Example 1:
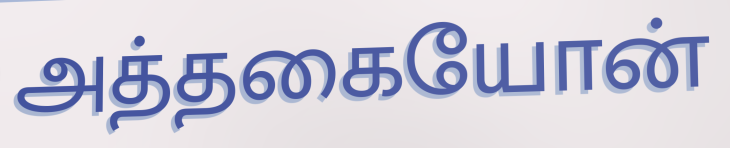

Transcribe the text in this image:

அத்தகையோன்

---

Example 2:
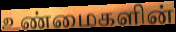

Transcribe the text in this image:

உண்மைகளின்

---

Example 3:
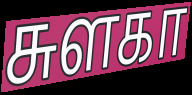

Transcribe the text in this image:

சுளகா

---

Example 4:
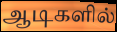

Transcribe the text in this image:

ஆடிகளில்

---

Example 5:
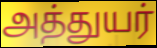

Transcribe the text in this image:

அத்துயர்